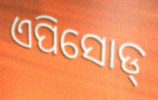
ଏପିସୋଡ୍